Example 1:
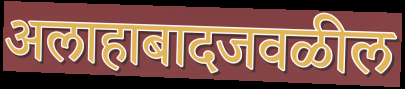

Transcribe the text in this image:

अलाहाबादजवळील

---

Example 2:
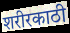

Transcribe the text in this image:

शरीरकाठी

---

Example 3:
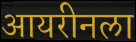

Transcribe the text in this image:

आयरीनला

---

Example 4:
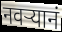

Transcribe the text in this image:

नवर्‍यानं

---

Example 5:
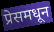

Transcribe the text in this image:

प्रेसमधून